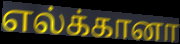
எல்க்கானா